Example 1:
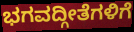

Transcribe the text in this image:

ಭಗವದ್ಗೀತೆಗಳಿಗೆ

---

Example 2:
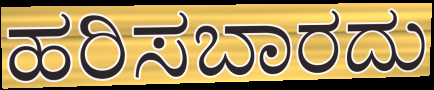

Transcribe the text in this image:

ಹರಿಸಬಾರದು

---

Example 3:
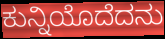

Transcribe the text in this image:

ಕುನ್ನಿಯೊದೆದನು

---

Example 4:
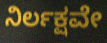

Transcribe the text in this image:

ನಿರ್ಲಕ್ಷವೇ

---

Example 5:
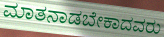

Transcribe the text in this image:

ಮಾತನಾಡಬೇಕಾದವರು